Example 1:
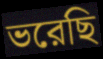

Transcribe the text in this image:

ভরেছি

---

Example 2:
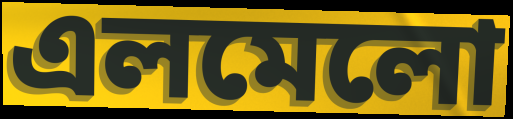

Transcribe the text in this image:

এলমেলো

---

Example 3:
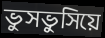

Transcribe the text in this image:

ভুসভুসিয়ে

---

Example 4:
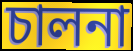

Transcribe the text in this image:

চালনা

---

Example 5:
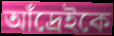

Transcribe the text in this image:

আঁদ্রেইকে